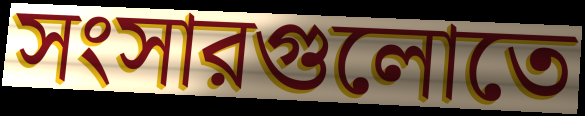
সংসারগুলোতে